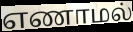
எணாமல்